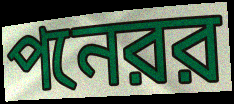
পনেরর